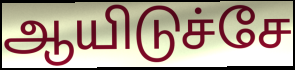
ஆயிடுச்சே